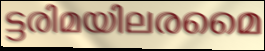
ട്ടരിമയിലരമൈ